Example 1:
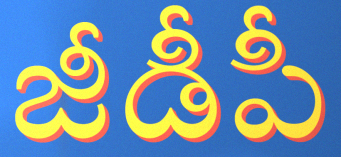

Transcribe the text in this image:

జీడీపీ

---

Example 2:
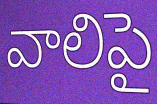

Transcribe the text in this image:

వాలిపై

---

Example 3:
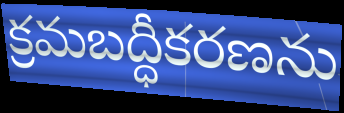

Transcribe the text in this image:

క్రమబద్ధీకరణను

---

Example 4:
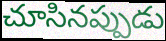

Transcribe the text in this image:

చూసినప్పుడు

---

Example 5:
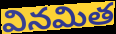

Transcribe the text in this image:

వినమిత